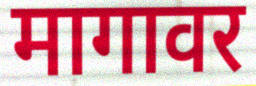
मागावर